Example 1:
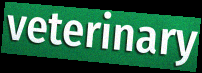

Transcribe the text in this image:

veterinary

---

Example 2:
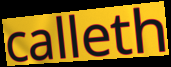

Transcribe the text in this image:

calleth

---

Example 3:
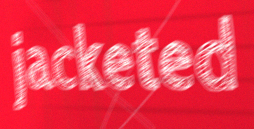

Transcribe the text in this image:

jacketed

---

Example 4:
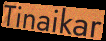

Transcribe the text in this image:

Tinaikar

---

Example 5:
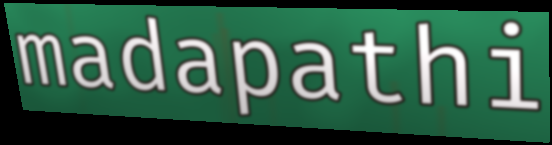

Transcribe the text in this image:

madapathi